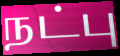
நட்பு